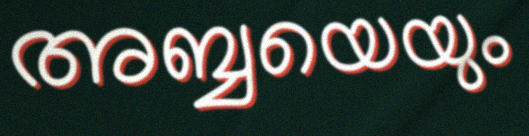
അബ്ബയെയും